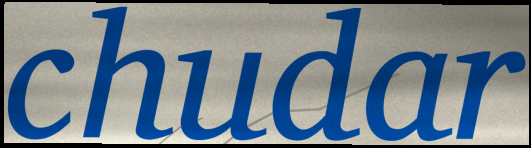
chudar